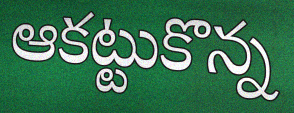
ఆకట్టుకొన్న